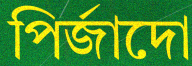
পিৰ্জাদো